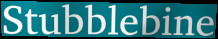
Stubblebine